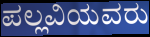
ಪಲ್ಲವಿಯವರು